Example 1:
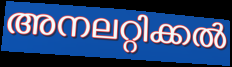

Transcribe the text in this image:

അനലറ്റിക്കൽ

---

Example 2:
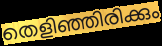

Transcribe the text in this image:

തെളിഞ്ഞിരിക്കും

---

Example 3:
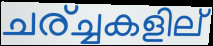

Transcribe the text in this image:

ചര്ച്ചകളില്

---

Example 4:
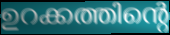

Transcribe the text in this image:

ഉറക്കത്തിന്റെ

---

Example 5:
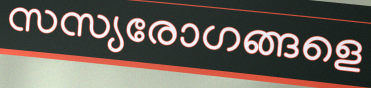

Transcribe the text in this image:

സസ്യരോഗങ്ങളെ